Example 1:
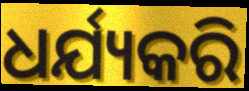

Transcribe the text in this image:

ଧର୍ଯ୍ୟକରି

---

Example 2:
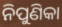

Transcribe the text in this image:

ନିପୁଣିକା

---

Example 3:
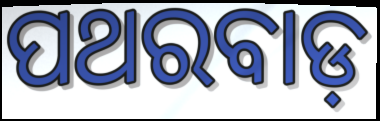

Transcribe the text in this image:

ପଥରବାଡ଼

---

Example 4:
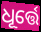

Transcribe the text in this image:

ଧୂର୍ତ୍ତେ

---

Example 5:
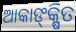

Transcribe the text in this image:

ଆକାଙ୍‍କ୍ଷିତ